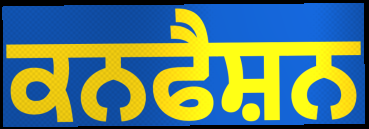
ਕਨਫੈਸ਼ਨ